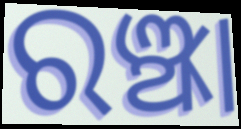
ରଞ୍ଝା